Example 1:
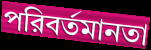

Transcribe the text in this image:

পরিবর্তমানতা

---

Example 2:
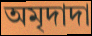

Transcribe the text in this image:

অমৃদাদা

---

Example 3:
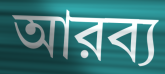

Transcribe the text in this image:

আরব্য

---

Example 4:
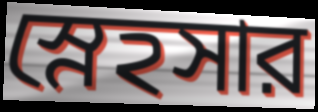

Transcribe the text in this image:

স্নেহসার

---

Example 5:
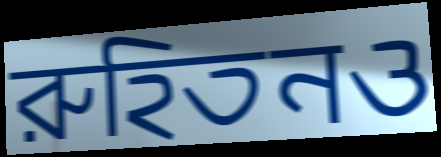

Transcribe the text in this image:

রুহিতনও